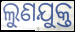
ଲୁଣଯୁକ୍ତ